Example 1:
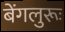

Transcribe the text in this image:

बेंगलुरूः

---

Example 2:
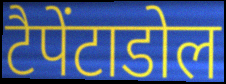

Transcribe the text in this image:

टैपेंटाडोल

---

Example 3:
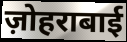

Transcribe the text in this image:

ज़ोहराबाई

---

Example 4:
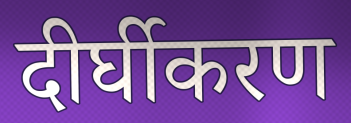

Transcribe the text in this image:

दीर्घीकरण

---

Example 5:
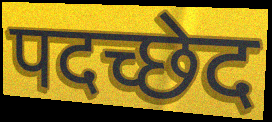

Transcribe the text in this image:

पदच्छेद